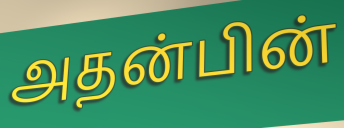
அதன்பின்